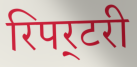
रिपर्टरी